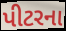
પીટરના